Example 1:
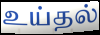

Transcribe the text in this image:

உய்தல்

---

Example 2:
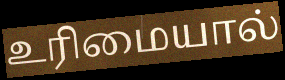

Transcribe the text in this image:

உரிமையால்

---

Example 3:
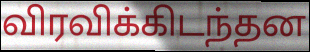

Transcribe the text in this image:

விரவிக்கிடந்தன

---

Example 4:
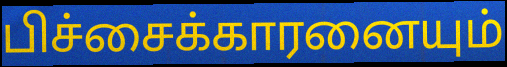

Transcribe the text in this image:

பிச்சைக்காரனையும்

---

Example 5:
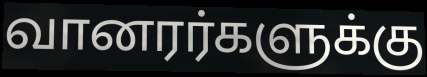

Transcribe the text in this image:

வானரர்களுக்கு